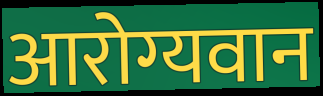
आरोग्यवान